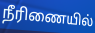
நீரிணையில்